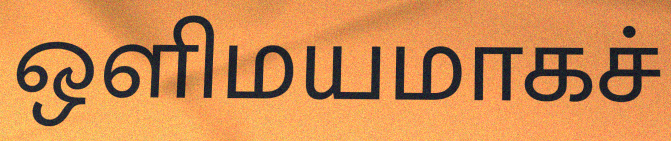
ஒளிமயமாகச்